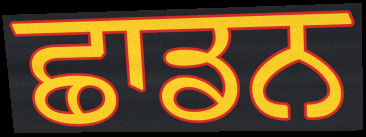
ਛਾਡਨ